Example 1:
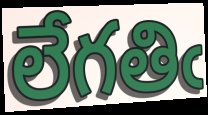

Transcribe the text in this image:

లేగతిఁ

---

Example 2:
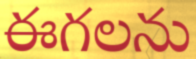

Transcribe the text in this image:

ఈగలను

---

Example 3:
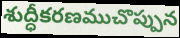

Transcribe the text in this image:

శుద్ధీకరణముచొప్పున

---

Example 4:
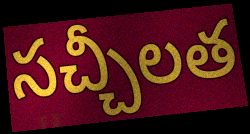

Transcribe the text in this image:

సచ్చీలత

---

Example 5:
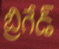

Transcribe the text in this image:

బ్రిగేడ్